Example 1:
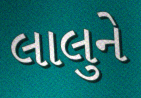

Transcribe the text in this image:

લાલુને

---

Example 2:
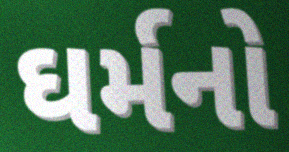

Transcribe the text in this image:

ઘર્મનો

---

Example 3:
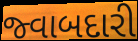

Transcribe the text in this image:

જ્વાબદારી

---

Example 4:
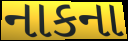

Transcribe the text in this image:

નાકના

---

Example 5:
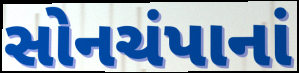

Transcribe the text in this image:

સોનચંપાનાં